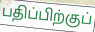
பதிப்பிற்குப்